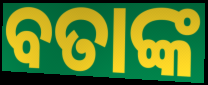
ବତାଙ୍କ